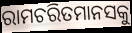
ରାମଚରିତମାନସକୁ